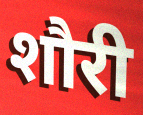
शौरी